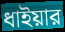
ধাইয়ার